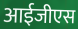
आईजीएस